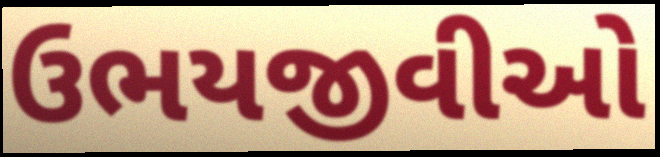
ઉભયજીવીઓ